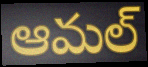
ఆమల్